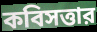
কবিসত্তার